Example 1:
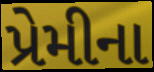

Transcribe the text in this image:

પ્રેમીના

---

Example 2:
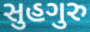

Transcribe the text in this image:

સુહગુરુ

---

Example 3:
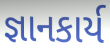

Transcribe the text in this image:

જ્ઞાનકાર્ય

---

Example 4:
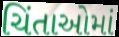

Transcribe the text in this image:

ચિંતાઓમાં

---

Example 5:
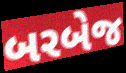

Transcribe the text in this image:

બરબેજ